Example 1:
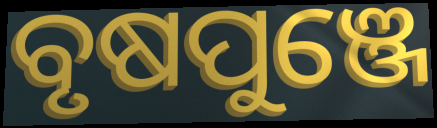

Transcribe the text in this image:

ବୃଷପୁଞ୍ଜେ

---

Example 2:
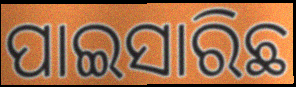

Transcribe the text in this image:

ପାଇସାରିଛ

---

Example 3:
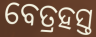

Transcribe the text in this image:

ବେତ୍ରହସ୍ତ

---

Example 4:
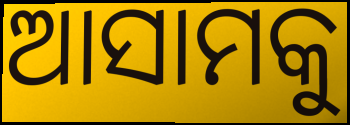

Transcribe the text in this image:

ଆସାମକୁ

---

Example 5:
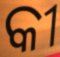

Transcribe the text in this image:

କୀ